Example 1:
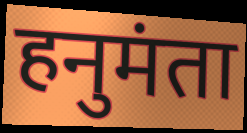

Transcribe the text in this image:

हनुमंता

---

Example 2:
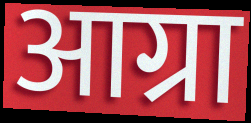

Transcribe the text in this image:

आग्रा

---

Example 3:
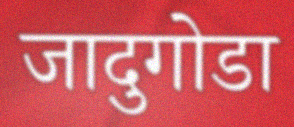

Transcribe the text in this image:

जादुगोडा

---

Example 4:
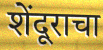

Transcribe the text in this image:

शेंदूराचा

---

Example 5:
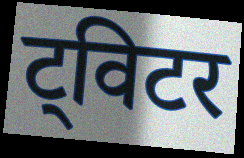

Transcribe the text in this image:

ट्विटर